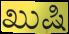
ಖುಷಿ